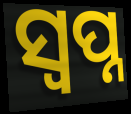
ସ୍ବପ୍ନ